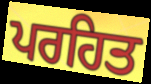
ਪਰਹਿਤ